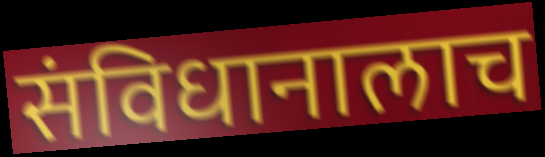
संविधानालाच